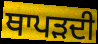
ਥਾਪੜਦੀ